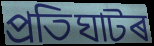
প্ৰতিঘাটৰ